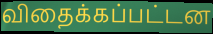
விதைக்கப்பட்டன